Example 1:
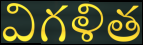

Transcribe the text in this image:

విగళిత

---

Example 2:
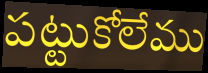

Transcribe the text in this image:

పట్టుకోలేము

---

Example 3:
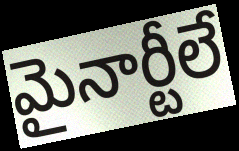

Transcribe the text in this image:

మైనార్టీలే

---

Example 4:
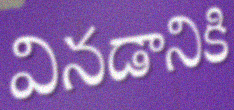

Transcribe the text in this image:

వినడానికి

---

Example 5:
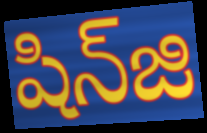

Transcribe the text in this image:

షిన్‌జి